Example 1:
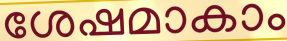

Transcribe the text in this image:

ശേഷമാകാം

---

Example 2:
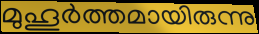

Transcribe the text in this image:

മുഹൂർത്തമായിരുന്നു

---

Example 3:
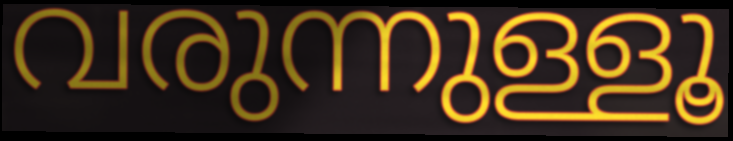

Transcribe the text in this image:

വരുന്നുള്ളൂ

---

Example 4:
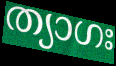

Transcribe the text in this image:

ത്യാഗഃ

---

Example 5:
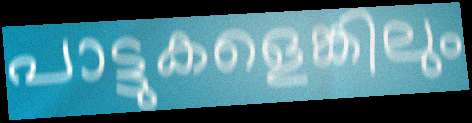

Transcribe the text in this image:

പാട്ടുകളെങ്കിലും